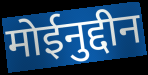
मोईनुद्दीन